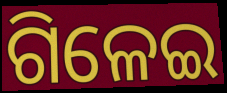
ଗିଳେଇ